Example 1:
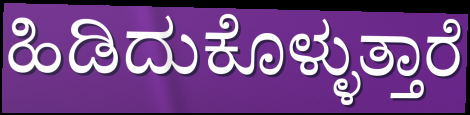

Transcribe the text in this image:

ಹಿಡಿದುಕೊಳ್ಳುತ್ತಾರೆ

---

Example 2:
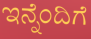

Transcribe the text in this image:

ಇನ್ನೆಂದಿಗೆ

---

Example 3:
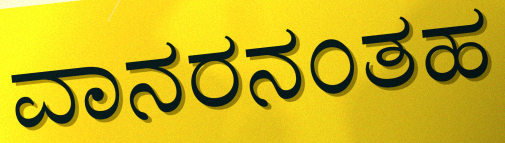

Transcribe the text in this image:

ವಾನರನಂತಹ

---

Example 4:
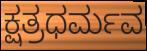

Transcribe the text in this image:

ಕ್ಷತ್ರಧರ್ಮವ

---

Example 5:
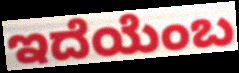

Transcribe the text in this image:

ಇದೆಯೆಂಬ